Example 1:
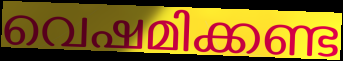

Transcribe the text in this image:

വെഷമിക്കണ്ട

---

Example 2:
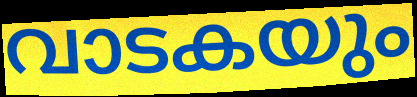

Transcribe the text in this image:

വാടകയും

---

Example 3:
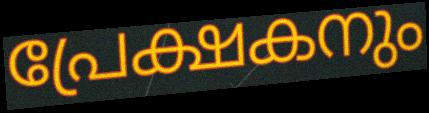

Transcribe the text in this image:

പ്രേക്ഷകനും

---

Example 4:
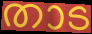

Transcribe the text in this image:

താട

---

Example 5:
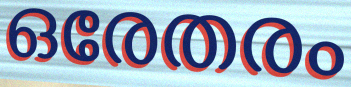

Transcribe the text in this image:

ഒരേതരം